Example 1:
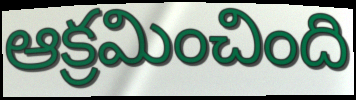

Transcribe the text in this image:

ఆక్రమించింది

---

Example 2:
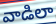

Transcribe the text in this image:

వాడిలా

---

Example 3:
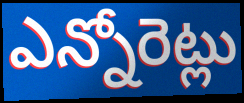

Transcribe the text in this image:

ఎన్నోరెట్లు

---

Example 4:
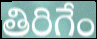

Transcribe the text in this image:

తిరిగేం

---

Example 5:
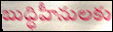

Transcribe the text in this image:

బుద్ధిహీనులకు